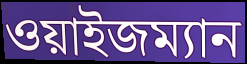
ওয়াইজম্যান